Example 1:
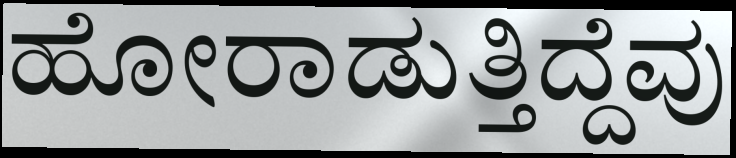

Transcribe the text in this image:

ಹೋರಾಡುತ್ತಿದ್ದೆವು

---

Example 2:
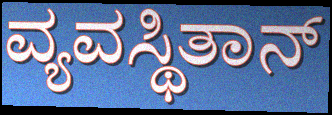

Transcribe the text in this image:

ವ್ಯವಸ್ಥಿತಾನ್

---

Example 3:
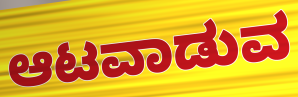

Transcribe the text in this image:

ಆಟವಾಡುವ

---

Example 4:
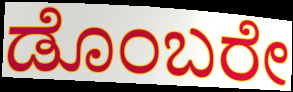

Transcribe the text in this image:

ಡೊಂಬರೇ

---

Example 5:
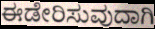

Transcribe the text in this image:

ಈಡೇರಿಸುವುದಾಗಿ